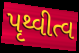
પૃથ્વીત્વ